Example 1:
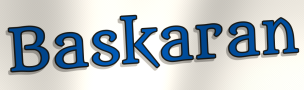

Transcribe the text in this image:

Baskaran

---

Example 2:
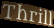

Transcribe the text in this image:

Thrill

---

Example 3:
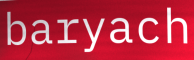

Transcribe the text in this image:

baryach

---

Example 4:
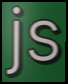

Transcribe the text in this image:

js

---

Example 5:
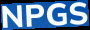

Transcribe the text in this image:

NPGS